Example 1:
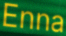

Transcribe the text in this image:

Enna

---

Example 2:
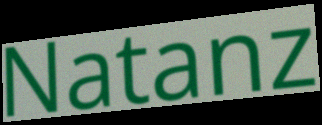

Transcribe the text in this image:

Natanz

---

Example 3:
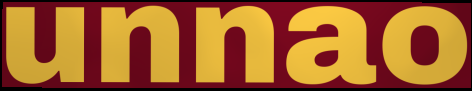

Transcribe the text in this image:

unnao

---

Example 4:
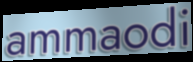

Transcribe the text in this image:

ammaodi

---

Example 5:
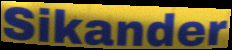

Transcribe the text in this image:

Sikander